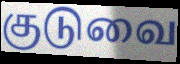
குடுவை